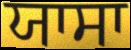
ਯਾਸਾ